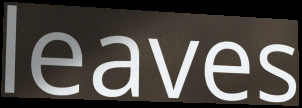
leaves